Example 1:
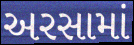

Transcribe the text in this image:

અરસામાં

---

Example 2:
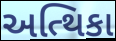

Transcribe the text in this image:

અત્થિકા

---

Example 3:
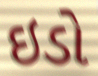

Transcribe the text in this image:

ઇડો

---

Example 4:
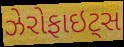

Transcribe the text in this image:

ઝેરોફાઇટ્સ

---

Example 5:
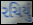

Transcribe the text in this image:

રચિયું